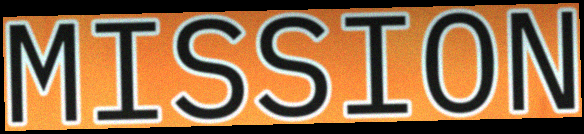
MISSION